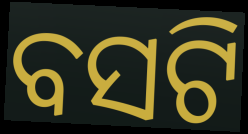
ବସଟି